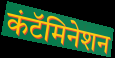
कंटॅमिनेशन